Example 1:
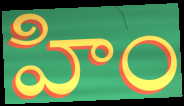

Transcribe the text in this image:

హిం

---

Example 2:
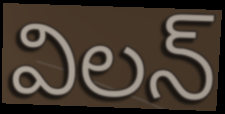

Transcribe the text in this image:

విలన్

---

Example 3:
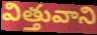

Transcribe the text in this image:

విత్తువాని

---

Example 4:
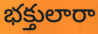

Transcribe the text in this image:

భక్తులారా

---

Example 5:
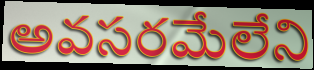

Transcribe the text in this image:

అవసరమేలేని